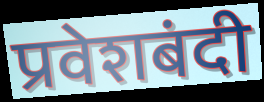
प्रवेशबंदी